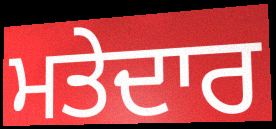
ਮਤੇਦਾਰ